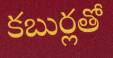
కబుర్లతో